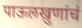
पाऊलखुणांचं